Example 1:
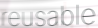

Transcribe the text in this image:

reusable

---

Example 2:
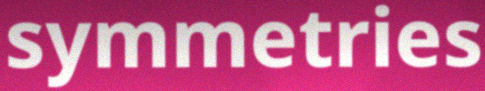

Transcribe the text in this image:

symmetries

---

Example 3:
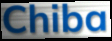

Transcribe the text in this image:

Chiba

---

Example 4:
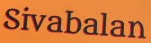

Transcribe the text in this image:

Sivabalan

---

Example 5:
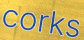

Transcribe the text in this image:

corks